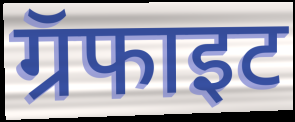
ग्रॅफाइट